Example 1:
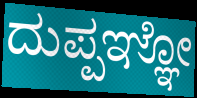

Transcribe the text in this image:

ದುಪ್ಪಞ್ಞೋ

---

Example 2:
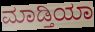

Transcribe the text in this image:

ಮಾಡ್ತಿಯಾ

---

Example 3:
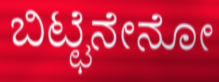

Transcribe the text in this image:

ಬಿಟ್ಟೆನೇನೋ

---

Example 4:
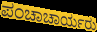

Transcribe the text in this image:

ಪಂಚಾಚಾರ್ಯರು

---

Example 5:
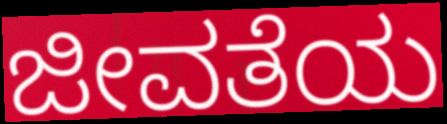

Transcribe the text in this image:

ಜೀವತೆಯ